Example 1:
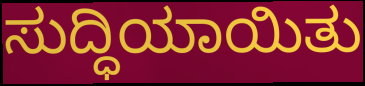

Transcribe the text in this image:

ಸುದ್ಧಿಯಾಯಿತು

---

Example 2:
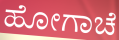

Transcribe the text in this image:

ಹೋಗಾಚೆ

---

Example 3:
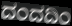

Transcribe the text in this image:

ದಂದದಿಂ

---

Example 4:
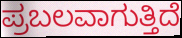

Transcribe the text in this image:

ಪ್ರಬಲವಾಗುತ್ತಿದೆ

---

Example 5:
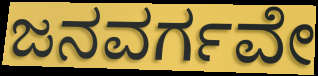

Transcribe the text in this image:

ಜನವರ್ಗವೇ